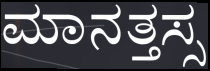
ಮಾನತ್ತಸ್ಸ